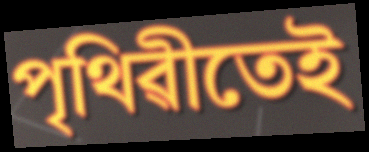
পৃথিৱীতেই